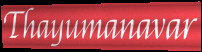
Thayumanavar